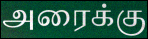
அரைக்கு